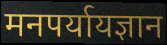
मनपर्यायज्ञान